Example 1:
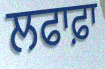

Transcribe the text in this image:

ਲਫਾਫ਼ਾ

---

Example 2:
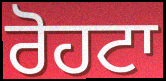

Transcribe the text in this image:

ਰੋਹਟਾ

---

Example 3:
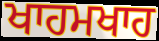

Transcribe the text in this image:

ਖਾਹਮਖਾਹ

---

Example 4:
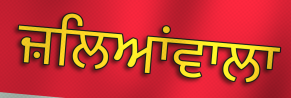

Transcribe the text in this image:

ਜ਼ਲਿਆਂਵਾਲਾ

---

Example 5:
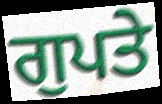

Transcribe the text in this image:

ਗੁਪਤੇ